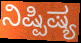
ನಿಷ್ಪಿಷ್ಯ